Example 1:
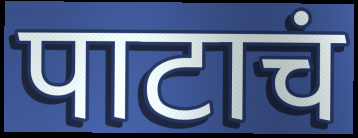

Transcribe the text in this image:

पाटाचं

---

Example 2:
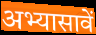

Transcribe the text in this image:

अभ्यासावें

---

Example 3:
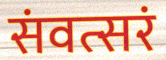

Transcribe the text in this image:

संवत्सरं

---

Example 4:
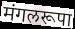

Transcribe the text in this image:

मंगलरूपा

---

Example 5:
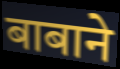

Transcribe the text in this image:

बाबाने